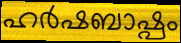
ഹർഷബാഷ്പം